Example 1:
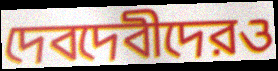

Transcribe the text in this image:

দেবদেবীদেরও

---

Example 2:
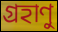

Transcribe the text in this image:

গ্রহাণু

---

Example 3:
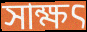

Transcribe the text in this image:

সাক্ষৎ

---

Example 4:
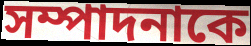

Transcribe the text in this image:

সম্পাদনাকে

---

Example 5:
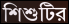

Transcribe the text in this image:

শিশুটির